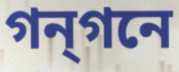
গন্গনে